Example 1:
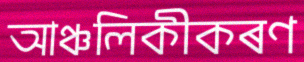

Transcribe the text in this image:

আঞ্চলিকীকৰণ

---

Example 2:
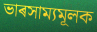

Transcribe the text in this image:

ভাৰসাম্যমূলক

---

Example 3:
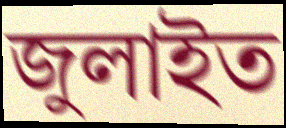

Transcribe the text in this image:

জুলাইত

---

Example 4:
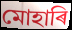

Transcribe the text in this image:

মোহাৰি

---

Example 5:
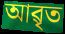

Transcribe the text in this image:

আৱৃত